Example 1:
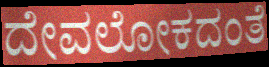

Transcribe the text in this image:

ದೇವಲೋಕದಂತೆ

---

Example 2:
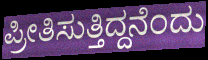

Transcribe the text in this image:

ಪ್ರೀತಿಸುತ್ತಿದ್ದನೆಂದು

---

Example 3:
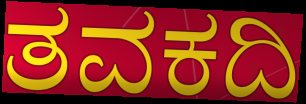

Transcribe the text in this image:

ತವಕದಿ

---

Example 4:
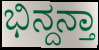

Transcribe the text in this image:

ಭಿನ್ದನ್ತಾ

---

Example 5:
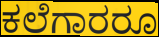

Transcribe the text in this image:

ಕಲೆಗಾರರೂ